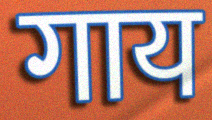
गाय